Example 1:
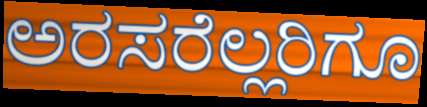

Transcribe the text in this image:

ಅರಸರೆಲ್ಲರಿಗೂ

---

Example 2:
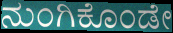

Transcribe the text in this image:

ನುಂಗಿಕೊಂಡೇ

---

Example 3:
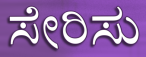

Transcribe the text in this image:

ಸೇರಿಸು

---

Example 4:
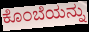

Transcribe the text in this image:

ಕೊಂಬೆಯನ್ನು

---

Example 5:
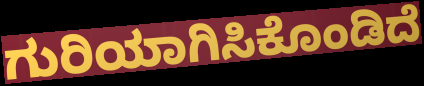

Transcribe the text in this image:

ಗುರಿಯಾಗಿಸಿಕೊಂಡಿದೆ